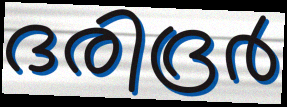
ദരിദ്രർ